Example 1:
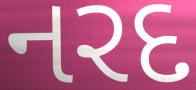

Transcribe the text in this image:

નરદ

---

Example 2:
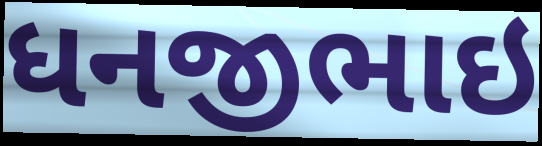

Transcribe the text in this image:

ધનજીભાઇ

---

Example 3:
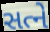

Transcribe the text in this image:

સત્ને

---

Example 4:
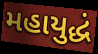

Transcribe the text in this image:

મહાયુદ્ધં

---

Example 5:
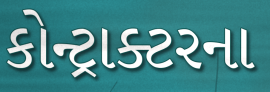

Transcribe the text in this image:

કોન્ટ્રાક્ટરના